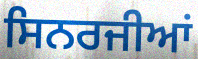
ਸਿਨਰਜੀਆਂ